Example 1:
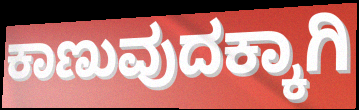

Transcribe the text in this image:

ಕಾಣುವುದಕ್ಕಾಗಿ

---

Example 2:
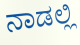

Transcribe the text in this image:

ನಾಡಲ್ಲಿ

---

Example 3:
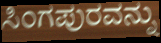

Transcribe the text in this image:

ಸಿಂಗಪುರವನ್ನು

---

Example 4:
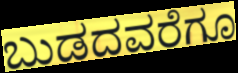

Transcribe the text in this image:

ಬುಡದವರೆಗೂ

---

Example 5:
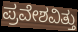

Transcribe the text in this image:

ಪ್ರವೇಶವಿತ್ತು